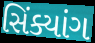
સિંક્યાંગ